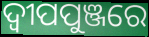
ଦ୍ୱୀପପୁଞ୍ଜରେ